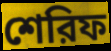
শেরিফ